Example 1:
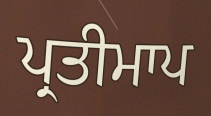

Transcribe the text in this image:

ਪ੍ਰਤੀਮਾਪ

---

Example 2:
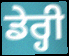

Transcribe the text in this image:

ਡੇਰ੍ਹੀ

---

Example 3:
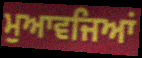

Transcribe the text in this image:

ਮੁਆਵਜਿਆਂ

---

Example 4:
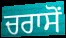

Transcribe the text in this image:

ਚਰਾਸੋਂ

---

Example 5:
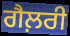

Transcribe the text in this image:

ਗੈਲ਼ਰੀ